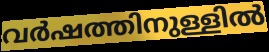
വർഷത്തിനുള്ളിൽ